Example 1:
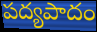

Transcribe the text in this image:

పద్యపాదం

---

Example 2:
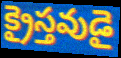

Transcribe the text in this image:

క్రైస్తవుడై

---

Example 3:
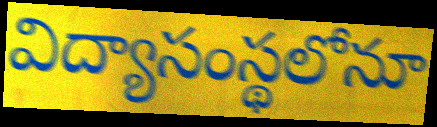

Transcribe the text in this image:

విద్యాసంస్థలోనూ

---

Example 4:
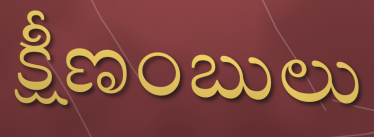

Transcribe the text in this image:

క్షీణంబులు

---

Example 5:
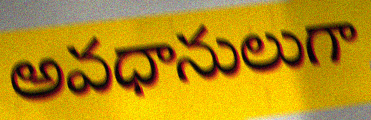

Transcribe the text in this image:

అవధానులుగా